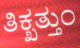
ತಿಕ್ಖತ್ತುಂ